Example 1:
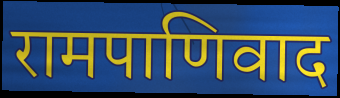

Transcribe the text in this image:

रामपाणिवाद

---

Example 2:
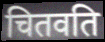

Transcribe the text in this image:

चितवति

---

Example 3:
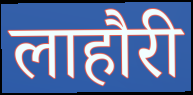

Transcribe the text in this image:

लाहौरी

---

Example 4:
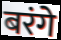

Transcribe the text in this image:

बरंगे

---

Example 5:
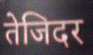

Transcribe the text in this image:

तेजिदर